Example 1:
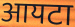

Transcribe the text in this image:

आयटा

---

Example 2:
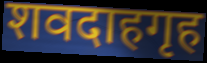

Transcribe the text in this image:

शवदाहगृह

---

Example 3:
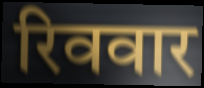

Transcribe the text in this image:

रिववार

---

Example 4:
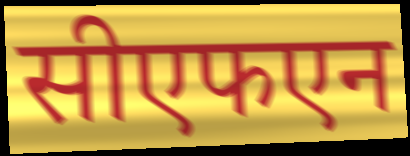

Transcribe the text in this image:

सीएफएन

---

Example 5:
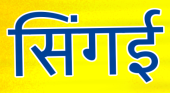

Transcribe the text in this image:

सिंगई